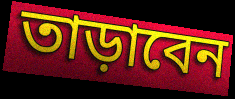
তাড়াবেন